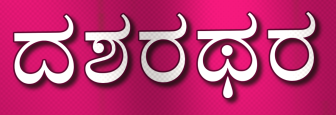
ದಶರಥರ